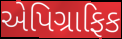
એપિગ્રાફિક